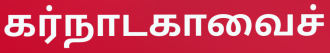
கர்நாடகாவைச்